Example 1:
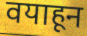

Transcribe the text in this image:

वयाहून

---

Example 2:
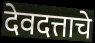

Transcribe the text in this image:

देवदत्ताचे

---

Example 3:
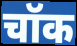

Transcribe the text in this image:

चॉक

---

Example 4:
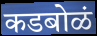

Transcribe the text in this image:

कडबोळं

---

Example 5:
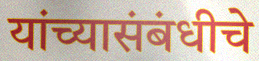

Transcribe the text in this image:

यांच्यासंबंधीचे